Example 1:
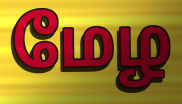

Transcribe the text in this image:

மேழ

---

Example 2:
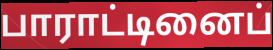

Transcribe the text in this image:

பாராட்டினைப்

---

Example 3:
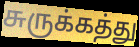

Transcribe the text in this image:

சுருக்கத்து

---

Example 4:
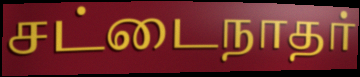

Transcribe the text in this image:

சட்டைநாதர்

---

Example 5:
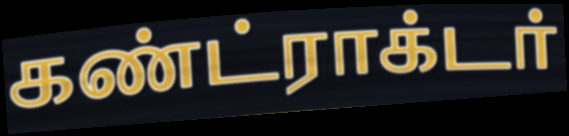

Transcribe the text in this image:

கண்ட்ராக்டர்